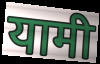
यामी